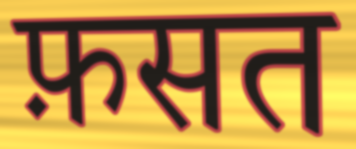
फ़सत